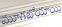
మూగబోయాయి